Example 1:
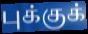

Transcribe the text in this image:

புக்குக்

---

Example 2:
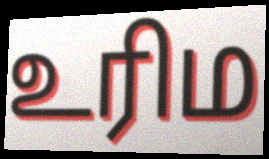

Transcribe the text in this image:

உரிம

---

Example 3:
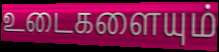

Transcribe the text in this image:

உடைகளையும்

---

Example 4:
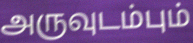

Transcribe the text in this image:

அருவுடம்பும்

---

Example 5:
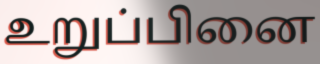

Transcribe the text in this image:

உறுப்பினை